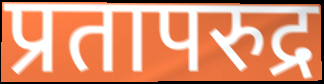
प्रतापरुद्र